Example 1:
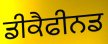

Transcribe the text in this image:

ਡੀਕੈਫੀਨਡ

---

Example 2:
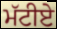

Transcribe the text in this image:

ਮੱਟੀਏ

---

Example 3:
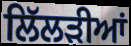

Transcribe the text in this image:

ਲਿੱਲੜੀਆਂ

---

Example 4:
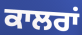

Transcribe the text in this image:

ਕਾਲਰਾਂ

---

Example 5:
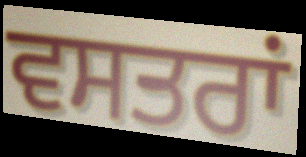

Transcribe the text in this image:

ਵਸਤਰਾਂ